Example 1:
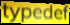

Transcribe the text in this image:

typedef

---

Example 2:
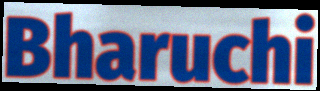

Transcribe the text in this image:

Bharuchi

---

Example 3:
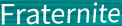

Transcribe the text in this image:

Fraternite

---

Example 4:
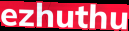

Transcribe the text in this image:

ezhuthu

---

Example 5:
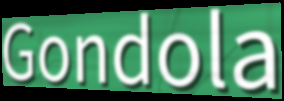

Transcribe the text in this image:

Gondola